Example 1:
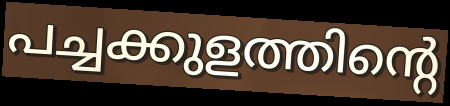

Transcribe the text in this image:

പച്ചക്കുളത്തിന്റെ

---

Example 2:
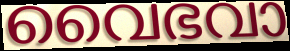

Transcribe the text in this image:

വൈഭവാ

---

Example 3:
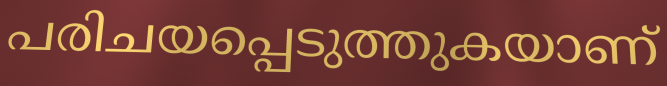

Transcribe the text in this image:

പരിചയപ്പെടുത്തുകയാണ്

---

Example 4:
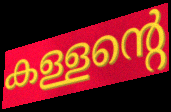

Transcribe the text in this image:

കള്ളന്റെ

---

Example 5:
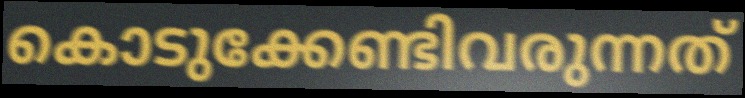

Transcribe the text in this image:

കൊടുക്കേണ്ടിവരുന്നത്